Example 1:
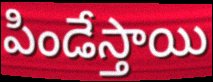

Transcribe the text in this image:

పిండేస్తాయి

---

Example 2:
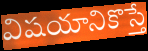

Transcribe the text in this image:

విషయానికొస్తే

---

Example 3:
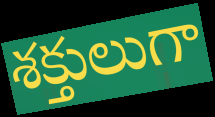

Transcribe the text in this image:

శక్తులుగా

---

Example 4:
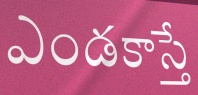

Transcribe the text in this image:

ఎండకాస్తే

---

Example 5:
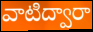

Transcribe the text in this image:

వాటిద్వారా